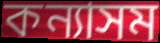
কন্যাসম